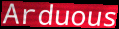
Arduous